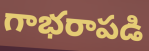
గాభరాపడి